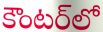
కౌంటర్‌లో